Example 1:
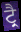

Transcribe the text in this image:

ਟ੍ਰੈ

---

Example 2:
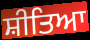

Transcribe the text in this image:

ਸ਼ੀਤਿਆ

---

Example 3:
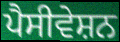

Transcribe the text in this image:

ਪੈਸੀਵੇਸ਼ਨ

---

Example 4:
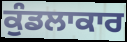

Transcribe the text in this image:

ਕੁੰਡਲਾਕਾਰ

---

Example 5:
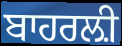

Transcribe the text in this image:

ਬਾਹਰਲ਼ੀ